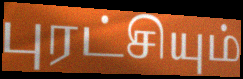
புரட்சியும்